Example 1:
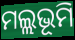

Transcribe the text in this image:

ମଲ୍ଲଭୂମି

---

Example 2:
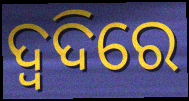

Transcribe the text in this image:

ଦ୍ଵଦିରେ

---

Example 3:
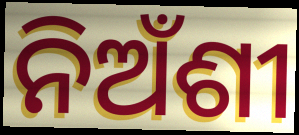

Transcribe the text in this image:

ନିଅଁଶୀ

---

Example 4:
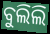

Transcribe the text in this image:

ବୁଲିଲି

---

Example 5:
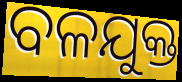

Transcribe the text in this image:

ବଳଯୁକ୍ତ